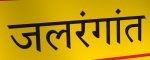
जलरंगांत